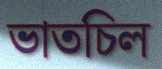
ভাতচিল